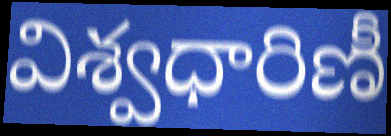
విశ్వధారిణీ